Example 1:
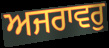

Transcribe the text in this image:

ਅਜਰਾਵਰੁ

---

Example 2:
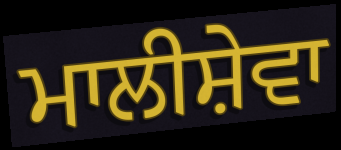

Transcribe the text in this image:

ਮਾਲੀਸ਼ੇਵਾ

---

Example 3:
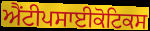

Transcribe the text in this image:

ਐਂਟੀਪਸਾਈਕੋਟਿਕਸ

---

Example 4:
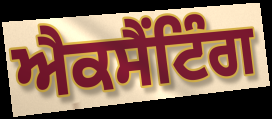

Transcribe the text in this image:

ਐਕਸੈਂਟਿੰਗ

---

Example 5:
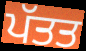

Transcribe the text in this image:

ਪੱਤਤ